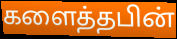
களைத்தபின்